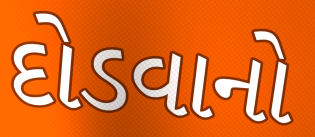
દોડવાનો